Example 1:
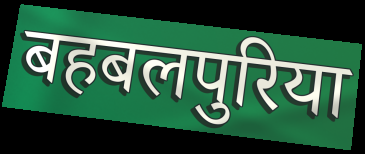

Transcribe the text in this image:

बहबलपुरिया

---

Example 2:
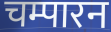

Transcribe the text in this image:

चम्पारन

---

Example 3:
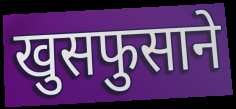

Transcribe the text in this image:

खुसफुसाने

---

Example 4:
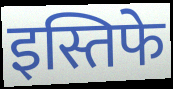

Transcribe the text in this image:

इस्तिफे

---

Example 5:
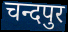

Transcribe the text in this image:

चन्दपुर